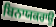
ਬਿਨਾਯਕਰਾਉ